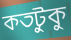
কতটুকু